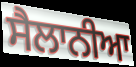
ਸੈਲਾਨੀਆ